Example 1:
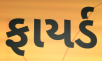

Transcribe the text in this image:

ફાયર્ડ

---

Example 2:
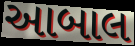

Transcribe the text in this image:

આબાલ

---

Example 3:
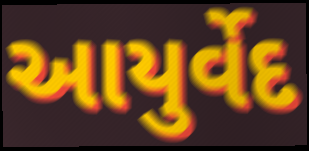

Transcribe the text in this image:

આયુર્વેદ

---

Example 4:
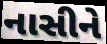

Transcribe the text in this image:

નાસીને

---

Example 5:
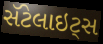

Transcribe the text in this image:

સૅટેલાઇટ્સ